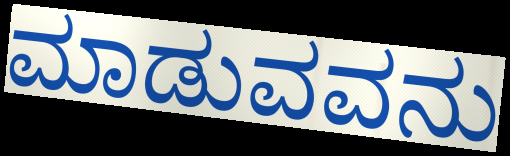
ಮಾಡುವವನು